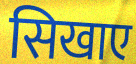
सिखाए